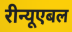
रीन्यूएबल